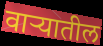
वाऱ्यातील